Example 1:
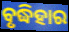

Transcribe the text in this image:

ବୃଦ୍ଧିହାର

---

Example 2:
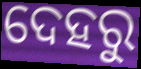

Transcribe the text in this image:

ଦେହରୁ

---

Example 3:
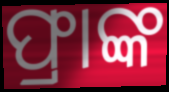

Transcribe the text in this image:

ଫ୍ରାଙ୍କ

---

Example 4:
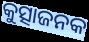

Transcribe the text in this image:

କୁତ୍ସାଜନକ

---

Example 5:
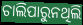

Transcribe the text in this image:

ଚାଲିପାରୁନଥିଲି